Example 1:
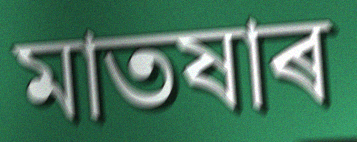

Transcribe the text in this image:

মাতষাৰ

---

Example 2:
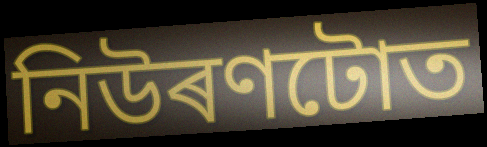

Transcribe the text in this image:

নিউৰণটোত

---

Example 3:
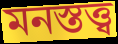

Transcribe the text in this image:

মনস্তত্ত্ব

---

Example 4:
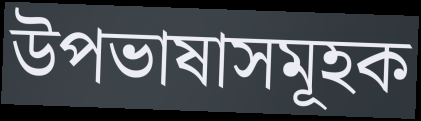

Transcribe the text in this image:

উপভাষাসমূহক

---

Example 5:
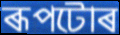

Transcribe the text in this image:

ৰূপটোৰ